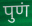
पुणं